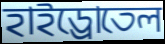
হাইড্রোতেল